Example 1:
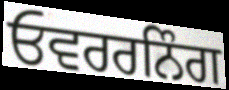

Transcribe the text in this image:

ਓਵਰਰਨਿੰਗ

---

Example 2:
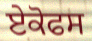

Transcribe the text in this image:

ਏਕੋਫਸ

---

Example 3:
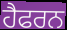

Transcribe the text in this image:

ਹੈਫਰਨ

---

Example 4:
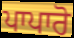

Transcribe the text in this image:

ਪਾਪਾਰੋ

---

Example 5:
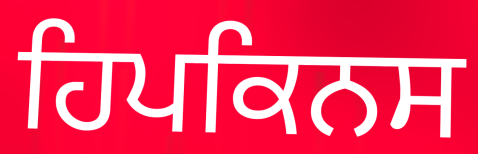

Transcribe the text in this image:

ਹਿਪਕਿਨਸ